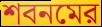
শবনমের